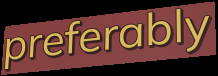
preferably